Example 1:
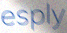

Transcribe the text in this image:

esply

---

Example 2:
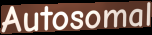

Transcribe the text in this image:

Autosomal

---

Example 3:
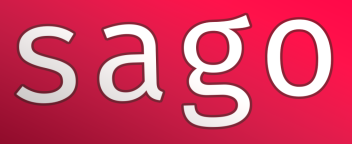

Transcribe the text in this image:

sago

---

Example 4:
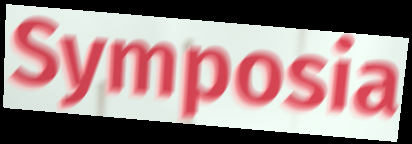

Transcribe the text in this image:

Symposia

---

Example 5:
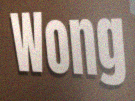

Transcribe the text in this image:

Wong